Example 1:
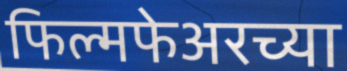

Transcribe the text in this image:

फिल्मफेअरच्या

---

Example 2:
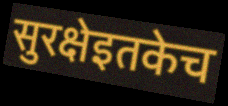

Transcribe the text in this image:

सुरक्षेइतकेच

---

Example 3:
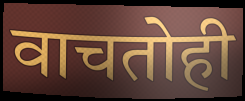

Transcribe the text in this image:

वाचतोही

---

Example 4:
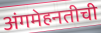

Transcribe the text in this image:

अंगमेहनतीची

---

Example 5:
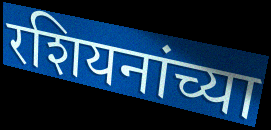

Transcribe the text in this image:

रशियनांच्या